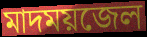
মাদময়জেল